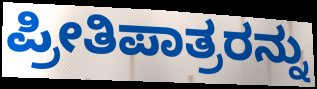
ಪ್ರೀತಿಪಾತ್ರರನ್ನು